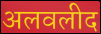
अलवलीद